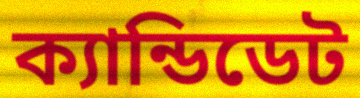
ক্যান্ডিডেট